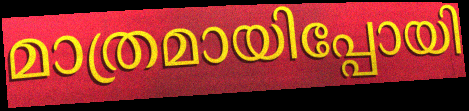
മാത്രമായിപ്പോയി